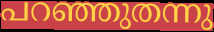
പറഞ്ഞുതന്നു